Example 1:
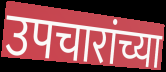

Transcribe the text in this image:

उपचारांच्या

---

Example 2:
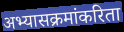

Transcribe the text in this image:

अभ्यासक्रमांकरिता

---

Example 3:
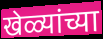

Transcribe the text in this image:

खेळ्यांच्या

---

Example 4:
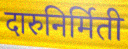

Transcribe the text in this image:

दारुनिर्मिती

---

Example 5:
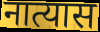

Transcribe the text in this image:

नात्यास